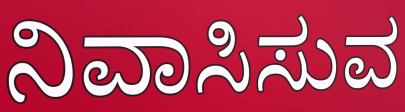
ನಿವಾಸಿಸುವ